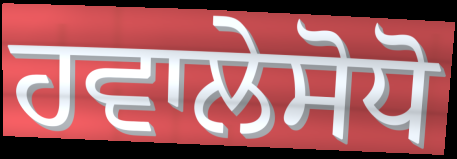
ਹਵਾਲੇਸੋਧੋ